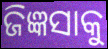
ଜିଜ୍ଞସାକୁ